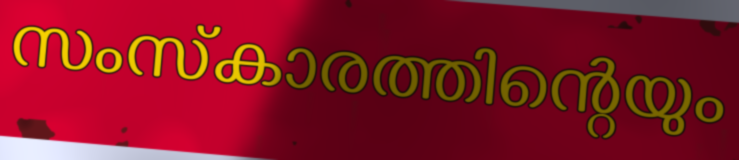
സംസ്‌കാരത്തിന്റെയും